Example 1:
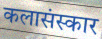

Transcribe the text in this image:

कलासंस्कार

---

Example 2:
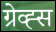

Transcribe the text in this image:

ग्रेव्ह्स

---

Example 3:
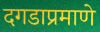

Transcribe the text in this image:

दगडाप्रमाणे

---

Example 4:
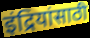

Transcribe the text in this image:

इंद्रियांसाठी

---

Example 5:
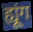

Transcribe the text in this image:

ह्यूंग